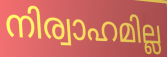
നിര്വാഹമില്ല